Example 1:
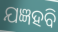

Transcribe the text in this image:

ଯଜ୍ଞହବି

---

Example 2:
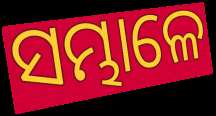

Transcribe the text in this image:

ସମ୍ଭାଳେ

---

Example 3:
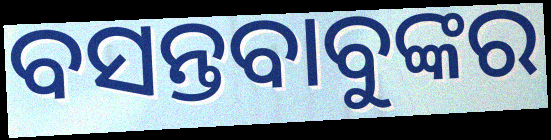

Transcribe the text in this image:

ବସନ୍ତବାବୁଙ୍କର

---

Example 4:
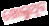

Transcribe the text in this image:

ଖୋଲୁଥିବ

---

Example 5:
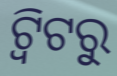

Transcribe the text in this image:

ଟ୍ବିଟରୁ